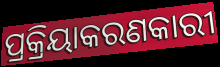
ପ୍ରକ୍ରିୟାକରଣକାରୀ